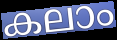
കലാം